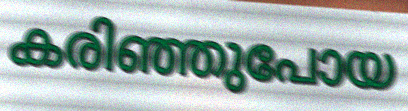
കരിഞ്ഞുപോയ